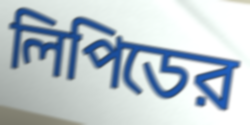
লিপিডের